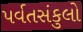
પર્વતસંકુલો